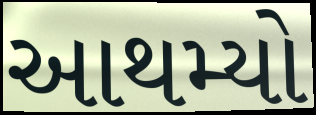
આથમ્યો